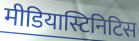
मीडियास्टिनिटिस